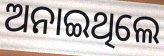
ଅନାଇଥିଲେ